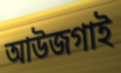
আউজগাই